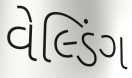
વેલ્ડિંગ